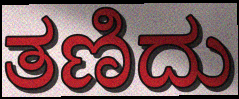
ತಣಿದು